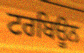
ਟਰਬਿਊਨ